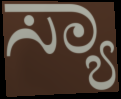
ಸ್ಯಾ